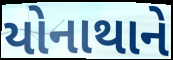
યોનાથાને